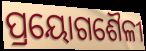
ପ୍ରୟୋଗଶୈଳୀ